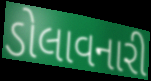
ડોલાવનારી